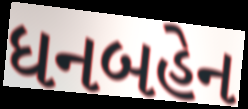
ધનબહેન